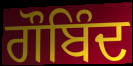
ਗੌਬਿੰਦ